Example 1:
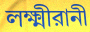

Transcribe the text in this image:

লক্ষ্মীরানী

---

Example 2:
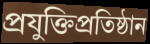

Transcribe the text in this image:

প্রযুক্তিপ্রতিষ্ঠান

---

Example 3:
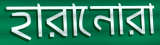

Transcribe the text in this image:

হারানোরা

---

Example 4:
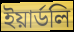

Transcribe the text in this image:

ইয়ার্ডলি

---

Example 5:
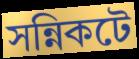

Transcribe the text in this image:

সন্নিকটে